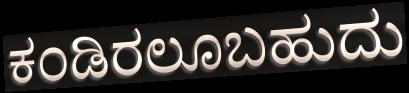
ಕಂಡಿರಲೂಬಹುದು